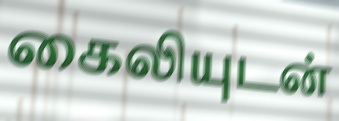
கைலியுடன்